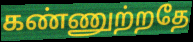
கண்ணுற்றதே